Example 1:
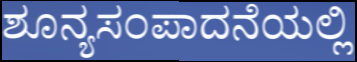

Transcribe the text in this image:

ಶೂನ್ಯಸಂಪಾದನೆಯಲ್ಲಿ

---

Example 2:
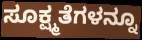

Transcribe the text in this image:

ಸೂಕ್ಷ್ಮತೆಗಳನ್ನೂ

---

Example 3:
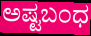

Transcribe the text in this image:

ಅಷ್ಟಬಂಧ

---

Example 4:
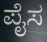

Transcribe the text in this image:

ಪೈಸ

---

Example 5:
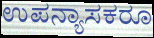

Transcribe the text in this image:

ಉಪನ್ಯಾಸಕರೂ